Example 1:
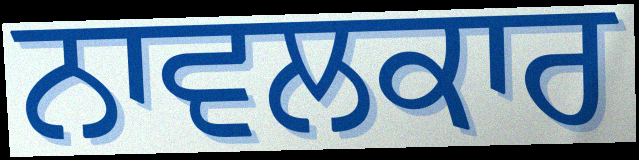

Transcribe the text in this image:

ਨਾਵਲਕਾਰ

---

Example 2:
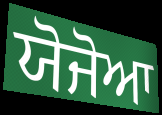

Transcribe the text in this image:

ਯੋਜੋਆ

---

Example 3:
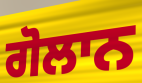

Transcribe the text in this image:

ਗੋਲਾਨ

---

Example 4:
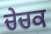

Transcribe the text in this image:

ਚੇਚਕ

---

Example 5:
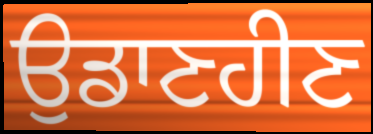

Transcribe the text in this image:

ਉਡਾਣਹੀਣ